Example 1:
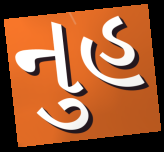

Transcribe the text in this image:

નુહ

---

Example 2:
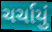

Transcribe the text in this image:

ચર્ચાયું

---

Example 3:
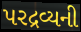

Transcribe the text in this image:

પરદ્રવ્યની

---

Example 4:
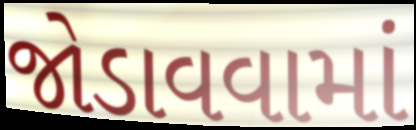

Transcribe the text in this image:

જોડાવવામાં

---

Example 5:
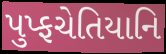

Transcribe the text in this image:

પુપ્ફચેતિયાનિ